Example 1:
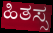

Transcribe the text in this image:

ಹಿತಸ್ಸ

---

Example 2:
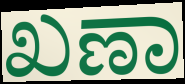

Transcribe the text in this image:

ಖಣಾ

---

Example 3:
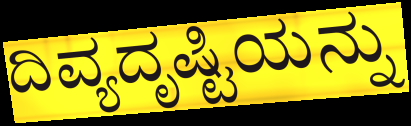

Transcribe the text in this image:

ದಿವ್ಯದೃಷ್ಟಿಯನ್ನು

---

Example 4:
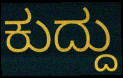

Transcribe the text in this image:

ಕುದ್ದು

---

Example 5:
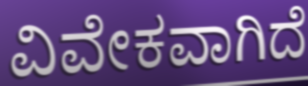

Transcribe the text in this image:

ವಿವೇಕವಾಗಿದೆ